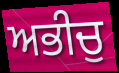
ਅਭੀਚੁ